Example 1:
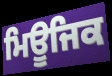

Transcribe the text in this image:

ਮਿਊਜਿਕ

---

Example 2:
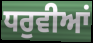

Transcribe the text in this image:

ਧਰੁਵੀਆਂ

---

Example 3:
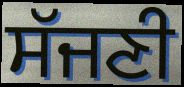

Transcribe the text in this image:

ਸੱਜਣੀ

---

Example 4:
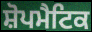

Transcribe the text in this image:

ਸ਼ੋਪਮੈਟਿਕ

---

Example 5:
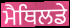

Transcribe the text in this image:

ਮੈਥਿਲਡੇ